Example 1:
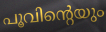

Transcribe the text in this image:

പൂവിന്റെയും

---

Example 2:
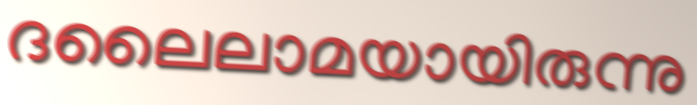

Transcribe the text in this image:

ദലൈലാമയായിരുന്നു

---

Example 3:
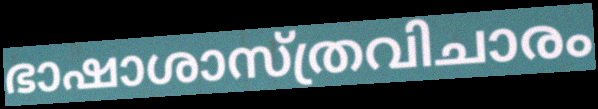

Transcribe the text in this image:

ഭാഷാശാസ്ത്രവിചാരം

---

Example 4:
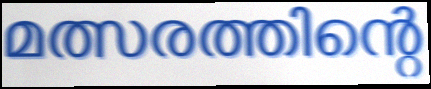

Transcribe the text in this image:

മത്സരത്തിന്റെ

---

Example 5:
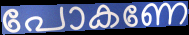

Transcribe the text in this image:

പോകണേ